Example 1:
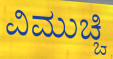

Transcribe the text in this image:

ವಿಮುಚ್ಚಿ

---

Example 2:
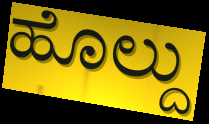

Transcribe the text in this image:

ಹೊಲ್ದು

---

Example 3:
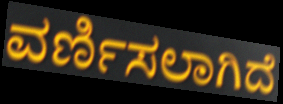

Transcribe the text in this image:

ವರ್ಣಿಸಲಾಗಿದೆ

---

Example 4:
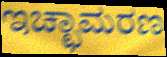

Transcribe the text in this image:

ಇಚ್ಛಾಮರಣ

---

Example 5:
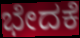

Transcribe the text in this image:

ಭೇದಕೆ